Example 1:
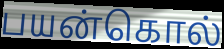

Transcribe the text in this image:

பயன்கொல்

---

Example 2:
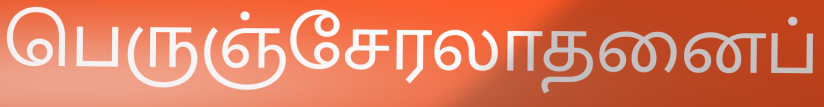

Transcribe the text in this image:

பெருஞ்சேரலாதனைப்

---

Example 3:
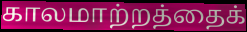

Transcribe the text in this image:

காலமாற்றத்தைக்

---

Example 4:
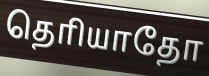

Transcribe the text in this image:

தெரியாதோ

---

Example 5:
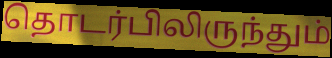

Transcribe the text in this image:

தொடர்பிலிருந்தும்